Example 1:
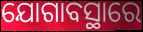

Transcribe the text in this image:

ଯୋଗାବସ୍ଥାରେ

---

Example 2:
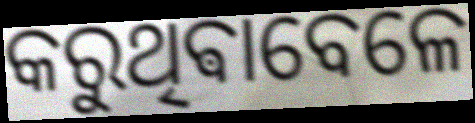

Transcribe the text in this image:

କରୁଥିଵାବେଳେ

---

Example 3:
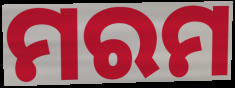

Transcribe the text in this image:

ମରମ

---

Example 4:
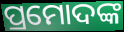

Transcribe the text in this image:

ପ୍ରମୋଦଙ୍କ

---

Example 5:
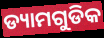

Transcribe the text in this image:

ଡ୍ୟାମଗୁଡିକ